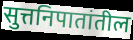
सुत्तनिपातांतील